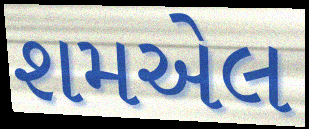
શમએલ